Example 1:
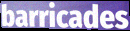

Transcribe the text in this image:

barricades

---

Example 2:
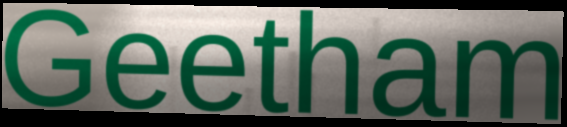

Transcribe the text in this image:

Geetham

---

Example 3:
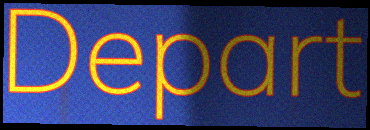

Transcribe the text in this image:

Depart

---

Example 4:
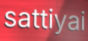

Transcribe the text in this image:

sattiyai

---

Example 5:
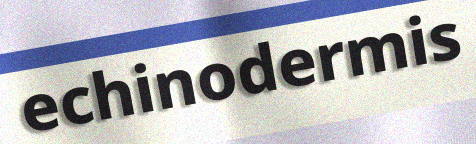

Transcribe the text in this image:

echinodermis